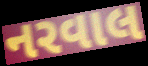
નરવાલ